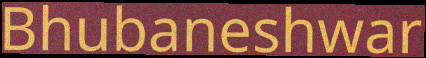
Bhubaneshwar